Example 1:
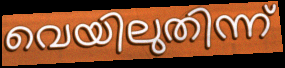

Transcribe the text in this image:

വെയിലുതിന്ന്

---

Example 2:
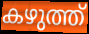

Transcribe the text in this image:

കഴുത്ത്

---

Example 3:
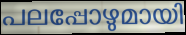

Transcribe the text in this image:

പലപ്പോഴുമായി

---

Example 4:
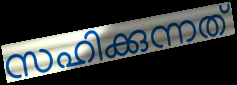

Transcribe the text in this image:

സഹിക്കുന്നത്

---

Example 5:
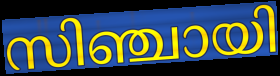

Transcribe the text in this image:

സിഞ്ചായി